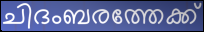
ചിദംബരത്തേക്ക്